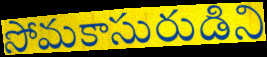
సోమకాసురుడిని